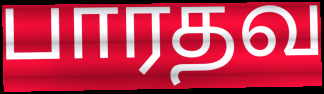
பாரதவ